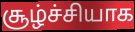
சூழ்ச்சியாக